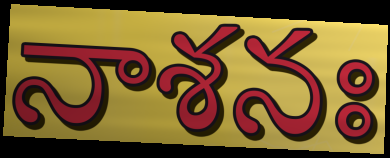
నాశనః